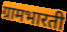
ग्रामभारती